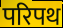
परिपथ